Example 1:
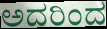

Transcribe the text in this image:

ಅದರಿಂದ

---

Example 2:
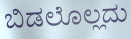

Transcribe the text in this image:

ಬಿಡಲೊಲ್ಲದು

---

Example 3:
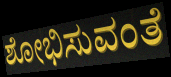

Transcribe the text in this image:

ಶೋಭಿಸುವಂತೆ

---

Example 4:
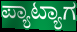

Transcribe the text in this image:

ಪ್ಯಾಟ್ಯಾಗ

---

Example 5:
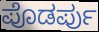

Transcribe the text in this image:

ಪೊಡರ್ಪು